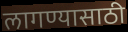
लागण्यासाठी